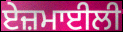
ਏਜ਼ਮਾਈਲੀ